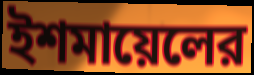
ইশমায়েলের